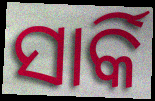
ସାର୍କି